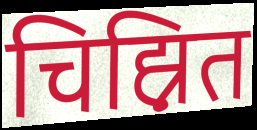
चिह्नित